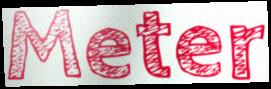
Meter